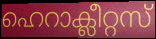
ഹെറാക്ലീറ്റസ്